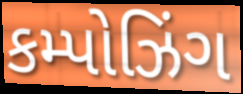
કમ્પોઝિંગ